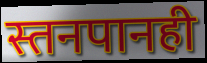
स्तनपानही